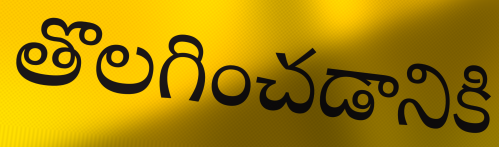
తొలగించడానికి